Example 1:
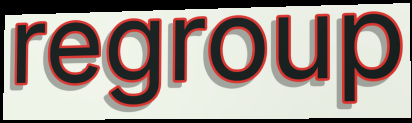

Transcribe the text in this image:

regroup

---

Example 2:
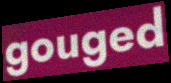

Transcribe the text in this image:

gouged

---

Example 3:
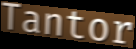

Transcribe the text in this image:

Tantor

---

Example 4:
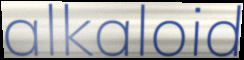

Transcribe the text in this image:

alkaloid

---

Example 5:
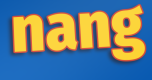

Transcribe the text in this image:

nang